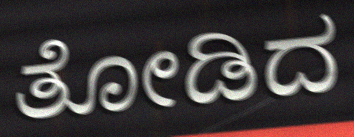
ತೋಡಿದ